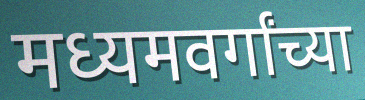
मध्यमवर्गांच्या